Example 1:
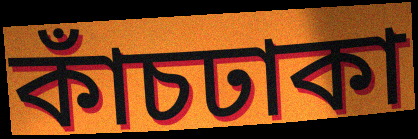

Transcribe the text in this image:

কাঁচঢাকা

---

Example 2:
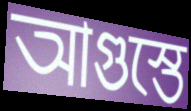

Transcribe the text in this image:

আগুস্তে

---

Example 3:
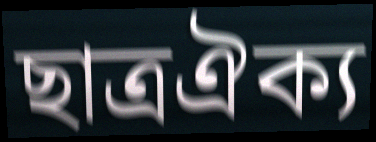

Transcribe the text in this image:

ছাত্রঐক্য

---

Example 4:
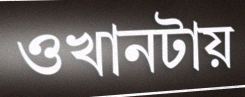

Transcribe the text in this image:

ওখানটায়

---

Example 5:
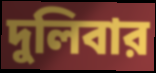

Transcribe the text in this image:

দুলিবার